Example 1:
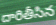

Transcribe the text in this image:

దారితీసిన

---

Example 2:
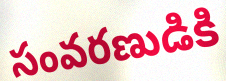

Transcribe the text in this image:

సంవరణుడికి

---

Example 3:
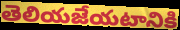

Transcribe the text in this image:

తెలియజేయటానికి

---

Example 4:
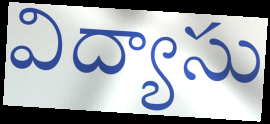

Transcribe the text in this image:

విద్యాసు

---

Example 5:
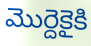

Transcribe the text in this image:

మొర్దెకైకి